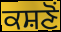
ਕਸ਼ਣੋਂ